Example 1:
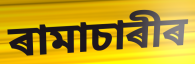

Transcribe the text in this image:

ৰামাচাৰীৰ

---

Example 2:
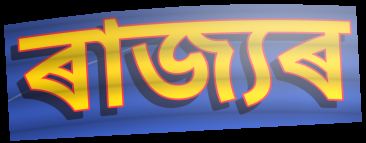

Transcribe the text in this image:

ৰাজ্যৰ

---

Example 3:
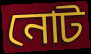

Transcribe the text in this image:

নোট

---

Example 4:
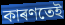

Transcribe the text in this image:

কাৰণতেই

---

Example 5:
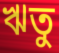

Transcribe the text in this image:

ঋতু